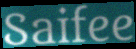
Saifee